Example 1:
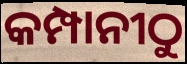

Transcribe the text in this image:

କମ୍ପାନୀଠୁ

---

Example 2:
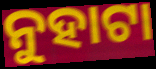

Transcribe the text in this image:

ନୁହାଟା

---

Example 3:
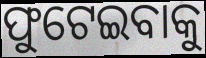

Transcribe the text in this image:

ଫୁଟେଇବାକୁ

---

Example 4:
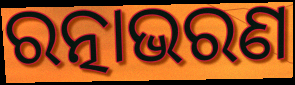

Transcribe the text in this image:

ରତ୍ନାଭରଣ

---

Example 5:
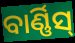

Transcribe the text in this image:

ବାର୍ଣ୍ଣିସ୍